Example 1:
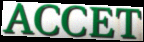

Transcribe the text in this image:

ACCET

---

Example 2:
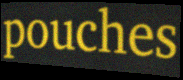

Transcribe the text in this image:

pouches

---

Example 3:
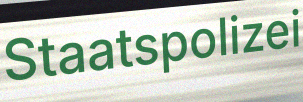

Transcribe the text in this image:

Staatspolizei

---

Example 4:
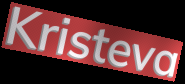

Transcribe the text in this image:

Kristeva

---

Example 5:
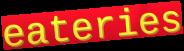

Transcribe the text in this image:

eateries